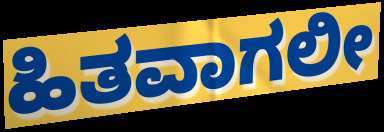
ಹಿತವಾಗಲೀ